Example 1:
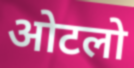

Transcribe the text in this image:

ओटलो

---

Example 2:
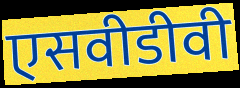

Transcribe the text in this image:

एसवीडीवी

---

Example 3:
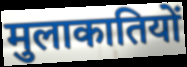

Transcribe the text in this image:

मुलाकातियों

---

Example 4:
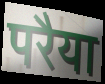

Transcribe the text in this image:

परैया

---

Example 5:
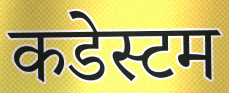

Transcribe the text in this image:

कडेस्टम